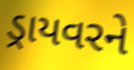
ડ્રાયવરને